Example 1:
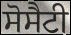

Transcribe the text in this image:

ਸੋਸੈਟੀ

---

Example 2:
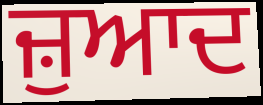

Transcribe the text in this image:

ਜ਼ੁਆਦ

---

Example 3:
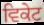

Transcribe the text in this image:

ਵਿਕੇਟ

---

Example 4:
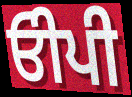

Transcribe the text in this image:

ਓੀਪੀ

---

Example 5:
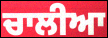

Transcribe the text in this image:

ਚਾਲੀਆ